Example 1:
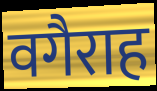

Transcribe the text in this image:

वगैराह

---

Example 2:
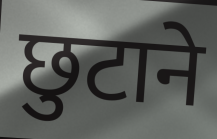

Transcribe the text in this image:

छुटाने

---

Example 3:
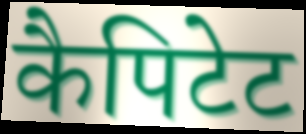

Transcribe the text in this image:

कैपिटेट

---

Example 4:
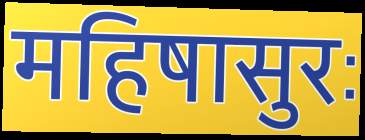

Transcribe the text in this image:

महिषासुरः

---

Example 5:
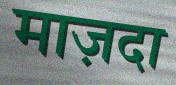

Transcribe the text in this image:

माज़दा